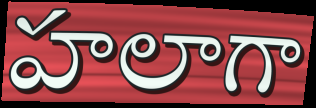
హలాగా